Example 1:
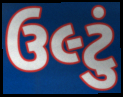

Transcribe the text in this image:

ઉલ્ટું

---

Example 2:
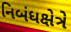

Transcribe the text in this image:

નિબંધક્ષેત્રે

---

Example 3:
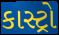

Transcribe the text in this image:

કાસ્ટ્રો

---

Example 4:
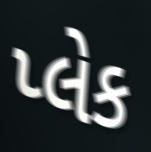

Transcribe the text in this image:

પ્લેક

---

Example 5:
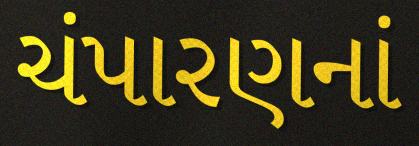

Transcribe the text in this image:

ચંપારણનાં